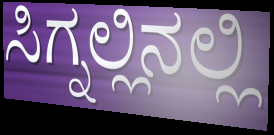
ಸಿಗ್ನಲ್ಲಿನಲ್ಲಿ